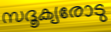
സദൂക്യരോടു